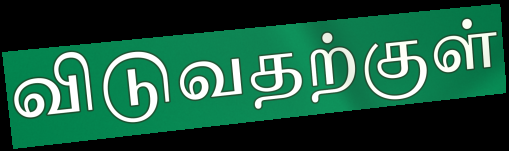
விடுவதற்குள்